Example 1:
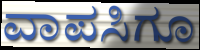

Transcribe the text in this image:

ವಾಪಸಿಗೂ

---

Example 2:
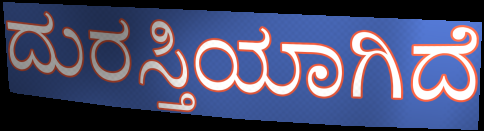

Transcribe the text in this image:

ದುರಸ್ತಿಯಾಗಿದೆ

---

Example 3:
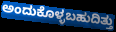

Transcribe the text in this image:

ಅಂದುಕೊಳ್ಳಬಹುದಿತ್ತು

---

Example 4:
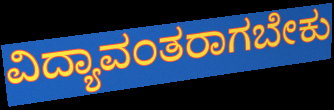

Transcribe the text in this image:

ವಿದ್ಯಾವಂತರಾಗಬೇಕು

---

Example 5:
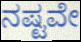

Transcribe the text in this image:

ನಷ್ಟವೇ